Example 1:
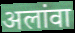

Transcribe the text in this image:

अलांवा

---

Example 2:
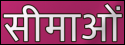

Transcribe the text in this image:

सीमाओं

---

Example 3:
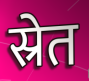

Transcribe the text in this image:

स्रेत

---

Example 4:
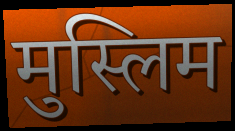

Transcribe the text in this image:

मुस्लिम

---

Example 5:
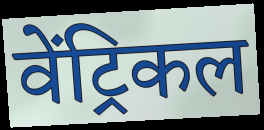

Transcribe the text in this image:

वेंट्रिकल